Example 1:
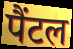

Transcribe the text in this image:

पैंटल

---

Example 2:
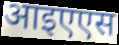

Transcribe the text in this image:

आइएएस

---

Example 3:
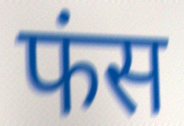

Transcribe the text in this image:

फंस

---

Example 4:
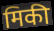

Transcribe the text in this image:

मिकी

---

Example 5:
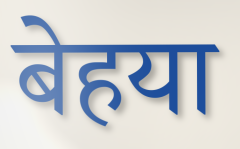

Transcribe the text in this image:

बेहया